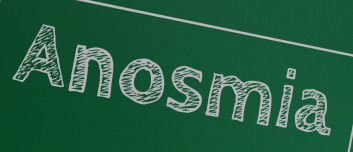
Anosmia